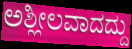
ಅಶ್ಲೀಲವಾದದ್ದು